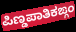
ಪಿಣ್ಡಪಾತಿಕಙ್ಗಂ